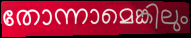
തോന്നാമെങ്കിലും